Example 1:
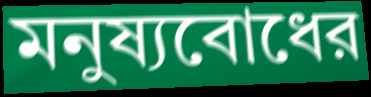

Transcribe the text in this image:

মনুষ্যবোধের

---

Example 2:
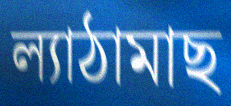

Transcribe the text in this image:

ল্যাঠামাছ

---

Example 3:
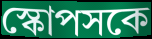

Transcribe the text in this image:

স্কোপসকে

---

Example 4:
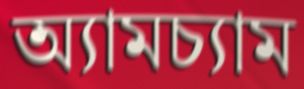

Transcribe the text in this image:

অ্যামচ্যাম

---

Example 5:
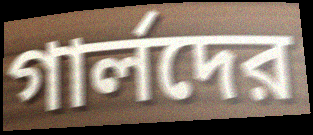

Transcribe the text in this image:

গার্লদের